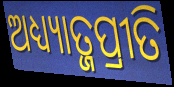
ଅଧ୍ୟ୍ୟାତ୍ଜପ୍ରୀତି